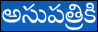
అసుపత్రికి